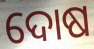
ଦୋଷ